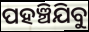
ପହଞ୍ଚିଯିବୁ